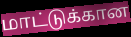
மாட்டுக்கான